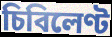
চিবিলেণ্ট